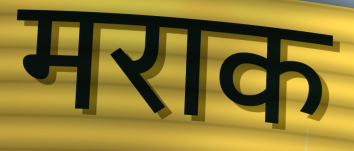
मराक